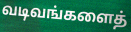
வடிவங்களைத்